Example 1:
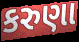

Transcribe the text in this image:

કરુણા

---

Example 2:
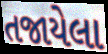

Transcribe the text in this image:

તજાયેલા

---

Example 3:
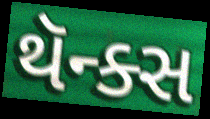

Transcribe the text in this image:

થૅન્ક્સ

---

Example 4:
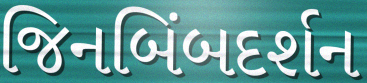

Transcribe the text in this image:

જિનબિંબદર્શન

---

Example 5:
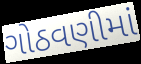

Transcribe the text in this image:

ગોઠવણીમાં